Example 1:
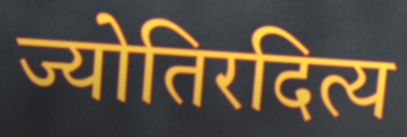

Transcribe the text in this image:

ज्योतिरदित्य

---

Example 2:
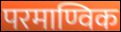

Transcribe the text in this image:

परमाण्विक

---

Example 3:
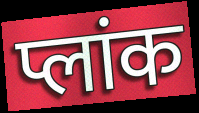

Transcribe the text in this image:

प्लांक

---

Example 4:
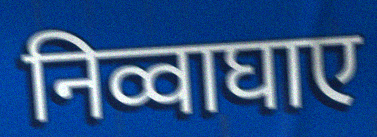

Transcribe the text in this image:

निव्वाघाए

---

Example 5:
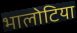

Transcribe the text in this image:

भालोटिया